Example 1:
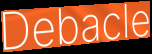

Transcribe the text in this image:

Debacle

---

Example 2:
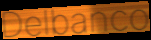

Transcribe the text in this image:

Delbanco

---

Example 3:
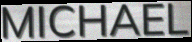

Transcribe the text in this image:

MICHAEL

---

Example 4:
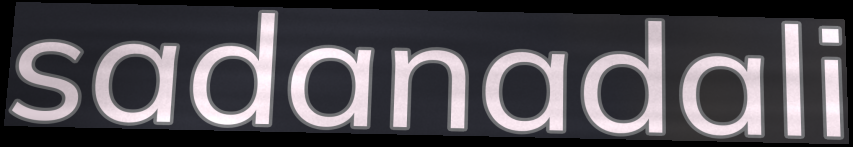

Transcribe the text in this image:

sadanadali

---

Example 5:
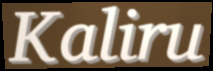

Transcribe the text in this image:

Kaliru